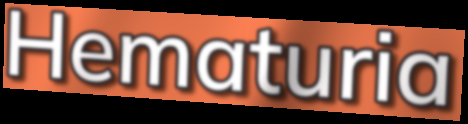
Hematuria